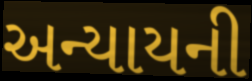
અન્યાયની